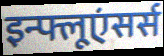
इन्फ्लूएंसर्स